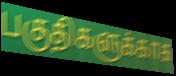
பகுதிகளுக்காக